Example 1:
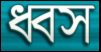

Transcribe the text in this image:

ধ্বস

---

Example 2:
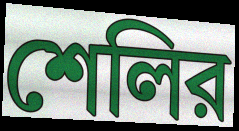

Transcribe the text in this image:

শেলির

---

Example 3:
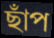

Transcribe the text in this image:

ছাঁপ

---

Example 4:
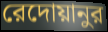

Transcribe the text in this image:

রেদোয়ানুর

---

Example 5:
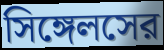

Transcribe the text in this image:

সিঙ্গেলসের